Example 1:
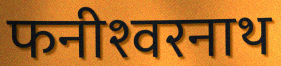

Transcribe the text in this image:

फनीश्वरनाथ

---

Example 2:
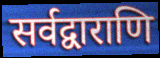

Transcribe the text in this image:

सर्वद्वाराणि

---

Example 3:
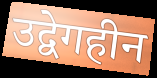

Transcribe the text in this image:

उद्वेगहीन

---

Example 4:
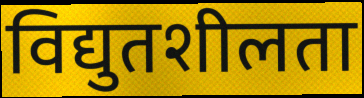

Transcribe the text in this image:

विद्युतशीलता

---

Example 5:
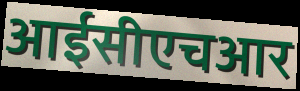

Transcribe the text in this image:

आईसीएचआर